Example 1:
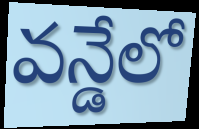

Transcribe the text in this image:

వన్డేలో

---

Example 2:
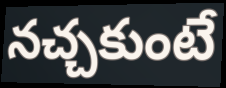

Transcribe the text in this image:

నచ్చకుంటే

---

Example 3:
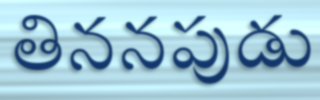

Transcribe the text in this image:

తిననపుడు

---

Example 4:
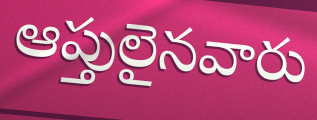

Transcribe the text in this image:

ఆప్తులైనవారు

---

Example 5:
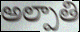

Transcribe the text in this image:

అల్పాతి